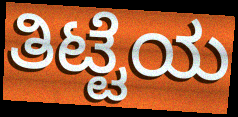
ತಿಟ್ಟೆಯ